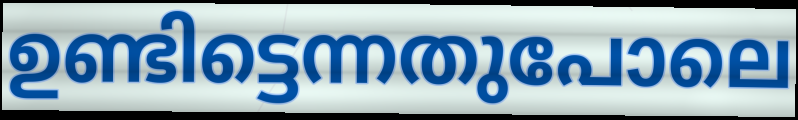
ഉണ്ടിട്ടെന്നതുപോലെ